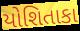
યોશિતાકા